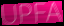
UPFA